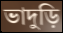
ভাদুড়ি